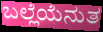
ಬಲ್ಲೆಯೆನುತ